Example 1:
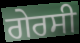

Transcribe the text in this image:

ਗੇਰਸੀ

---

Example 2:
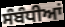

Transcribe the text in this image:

ਸੰਬੰਧੀਆਂ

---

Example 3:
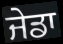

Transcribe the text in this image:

ਜੇਡਾ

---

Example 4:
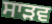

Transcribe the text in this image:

ਸਾੜਵ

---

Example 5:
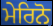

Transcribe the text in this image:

ਮੇਰਿਨੋ